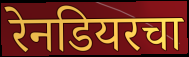
रेनडियरचा